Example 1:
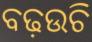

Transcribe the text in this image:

ବଢ଼ଉଚି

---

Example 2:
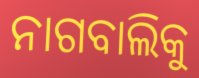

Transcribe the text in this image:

ନାଗବାଲିକୁ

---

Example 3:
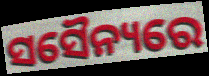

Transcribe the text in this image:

ସସୈନ୍ୟରେ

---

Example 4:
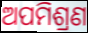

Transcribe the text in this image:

ଅପମିଶ୍ରଣ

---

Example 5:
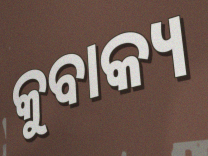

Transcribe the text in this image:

କୁବାକ୍ୟ